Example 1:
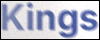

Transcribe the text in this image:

Kings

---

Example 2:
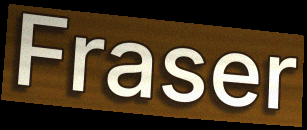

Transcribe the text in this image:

Fraser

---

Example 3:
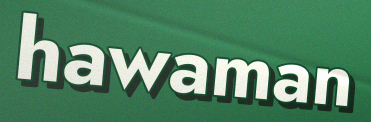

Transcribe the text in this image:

hawaman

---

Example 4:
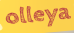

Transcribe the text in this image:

olleya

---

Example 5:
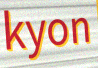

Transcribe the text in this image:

kyon